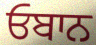
ਓਬਾਨ